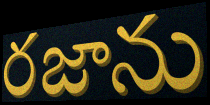
రజాను